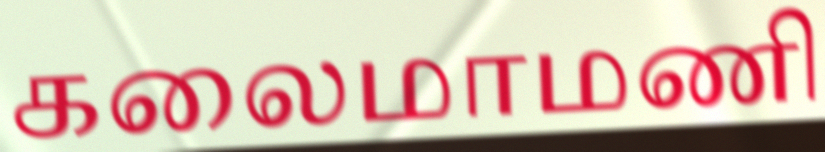
கலைமாமணி